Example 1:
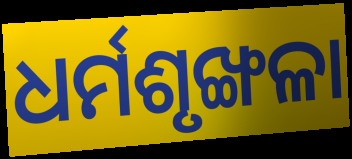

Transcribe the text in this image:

ଧର୍ମଶୃଙ୍ଖଳା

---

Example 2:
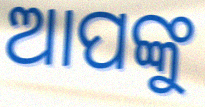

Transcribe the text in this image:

ଆପଙ୍କୁ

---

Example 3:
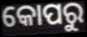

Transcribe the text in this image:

କୋପରୁ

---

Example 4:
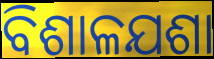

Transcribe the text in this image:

ବିଶାଳଯଶା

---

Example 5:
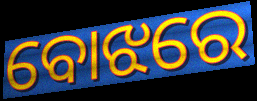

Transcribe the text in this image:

ବୋଝରେ